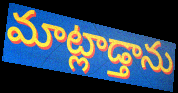
మాట్లాడ్తాను